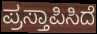
ಪ್ರಸ್ತಾಪಿಸಿದೆ